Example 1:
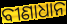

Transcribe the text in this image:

ବୀଣାଧାନ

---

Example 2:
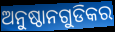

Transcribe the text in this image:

ଅନୁଷ୍ଠାନଗୁଡିକର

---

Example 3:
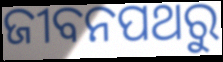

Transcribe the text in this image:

ଜୀବନପଥରୁ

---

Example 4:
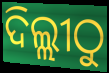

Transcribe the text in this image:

ଦିଲ୍ଲୀଠୁ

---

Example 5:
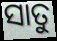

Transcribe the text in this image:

ସାତୁ